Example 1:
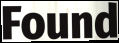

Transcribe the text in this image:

Found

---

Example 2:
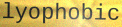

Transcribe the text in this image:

lyophobic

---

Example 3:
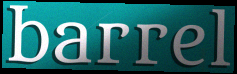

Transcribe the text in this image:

barrel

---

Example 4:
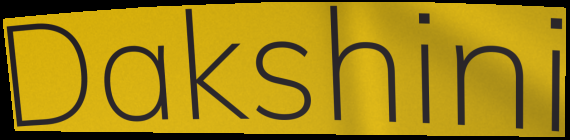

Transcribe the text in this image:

Dakshini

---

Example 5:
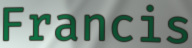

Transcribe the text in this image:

Francis